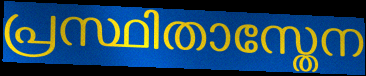
പ്രസ്ഥിതാസ്തേന